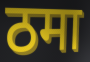
ठमा